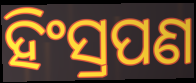
ହିଂସ୍ରପଣ